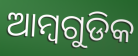
ଆମ୍ବଗୁଡିକ